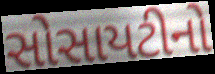
સોસાયટીનો